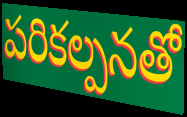
పరికల్పనతో